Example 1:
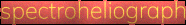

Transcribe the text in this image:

spectroheliograph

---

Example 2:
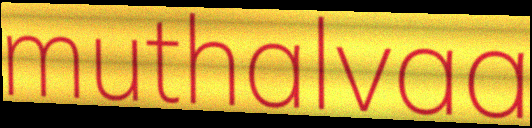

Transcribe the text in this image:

muthalvaa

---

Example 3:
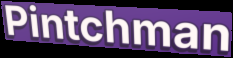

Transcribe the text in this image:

Pintchman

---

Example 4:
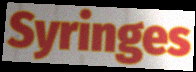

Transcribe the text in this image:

Syringes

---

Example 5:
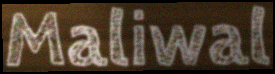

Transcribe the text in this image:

Maliwal